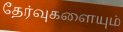
தேர்வுகளையும்